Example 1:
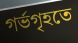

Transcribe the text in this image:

গর্ভগৃহতে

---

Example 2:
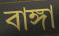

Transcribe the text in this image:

বাঙ্গা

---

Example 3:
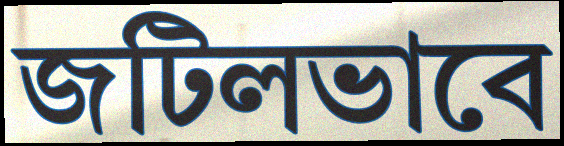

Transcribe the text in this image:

জটিলভাবে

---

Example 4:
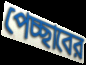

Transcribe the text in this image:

পেচ্ছাবের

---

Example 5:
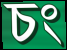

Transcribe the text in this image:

চং